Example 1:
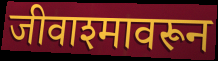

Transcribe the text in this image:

जीवाश्मावरून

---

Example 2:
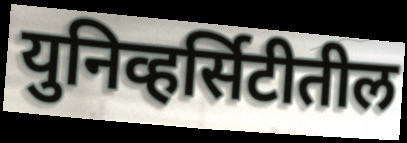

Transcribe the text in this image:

युनिव्हर्सिटीतील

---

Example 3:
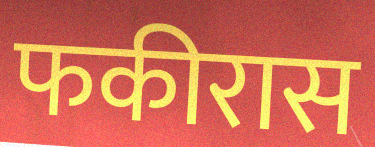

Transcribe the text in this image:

फकीरास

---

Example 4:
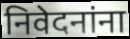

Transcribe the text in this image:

निवेदनांना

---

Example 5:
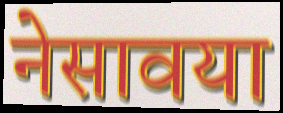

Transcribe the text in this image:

नेसावया